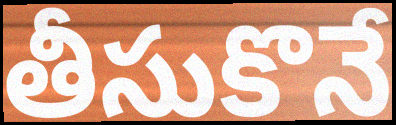
తీసుకొనే